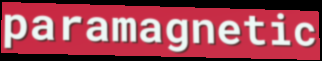
paramagnetic